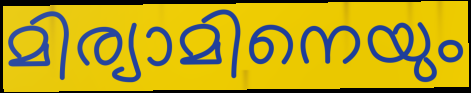
മിര്യാമിനെയും